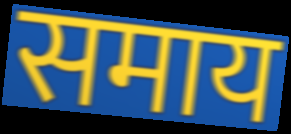
समाय